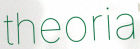
theoria